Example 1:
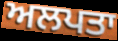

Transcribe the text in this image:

ਅਲਪਤਾ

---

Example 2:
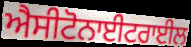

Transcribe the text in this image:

ਐਸੀਟੋਨਾਈਟਰਾਈਲ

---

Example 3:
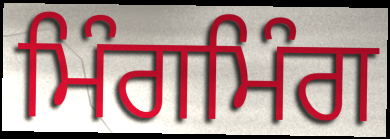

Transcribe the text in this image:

ਮਿੰਗਮਿੰਗ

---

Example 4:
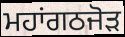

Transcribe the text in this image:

ਮਹਾਂਗਠਜੋਡ਼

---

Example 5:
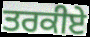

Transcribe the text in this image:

ਤਰਕੀਏ